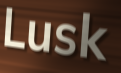
Lusk